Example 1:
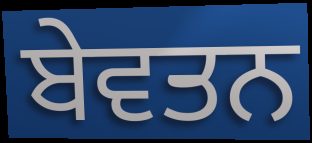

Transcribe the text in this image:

ਬੇਵਤਨ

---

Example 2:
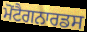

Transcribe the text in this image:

ਮੋਂਟੈਗਨਾਰਡਸ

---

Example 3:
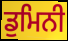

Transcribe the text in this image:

ਡੁਮਿਨੀ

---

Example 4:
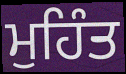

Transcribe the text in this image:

ਮੁਹਿੰਤ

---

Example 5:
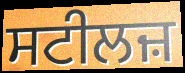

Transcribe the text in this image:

ਸਟੀਲਜ਼